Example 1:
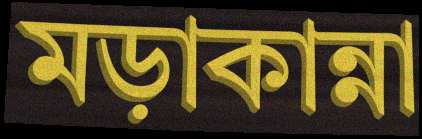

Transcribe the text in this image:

মড়াকান্না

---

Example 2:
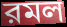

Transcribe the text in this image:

রমল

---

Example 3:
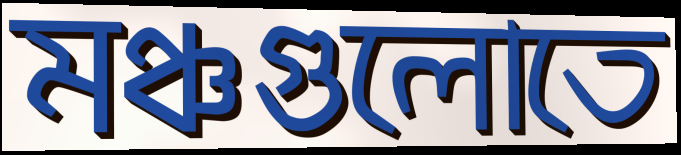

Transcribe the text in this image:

মঞ্চগুলোতে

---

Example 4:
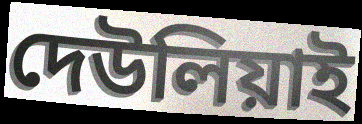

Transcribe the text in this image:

দেউলিয়াই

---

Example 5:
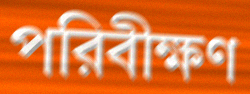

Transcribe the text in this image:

পরিবীক্ষণ